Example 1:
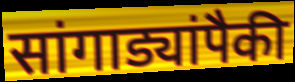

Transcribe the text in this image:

सांगाड्यांपैकी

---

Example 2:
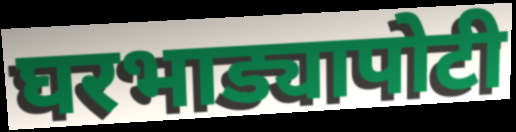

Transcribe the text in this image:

घरभाड्यापोटी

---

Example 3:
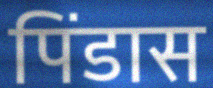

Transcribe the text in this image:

पिंडास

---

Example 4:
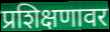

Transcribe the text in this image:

प्रशिक्षणावर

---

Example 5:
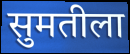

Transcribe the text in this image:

सुमतीला